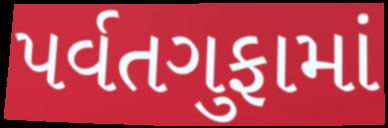
પર્વતગુફામાં